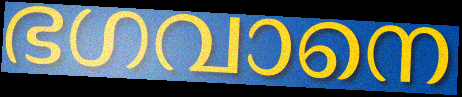
ഭഗവാനെ